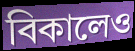
বিকালেও